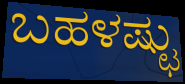
ಬಹಳಷ್ಟು